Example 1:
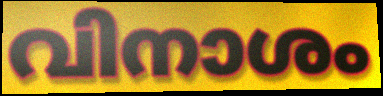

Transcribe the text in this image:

വിനാശം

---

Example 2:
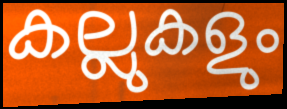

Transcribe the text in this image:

കല്ലുകളും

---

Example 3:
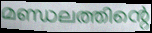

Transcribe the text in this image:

മണ്ഡലത്തിന്റെ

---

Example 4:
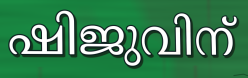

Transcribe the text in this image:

ഷിജുവിന്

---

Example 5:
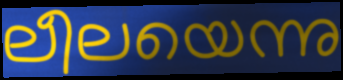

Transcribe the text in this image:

ലീലയെന്നു